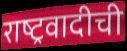
राष्ट्रवादीची